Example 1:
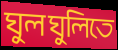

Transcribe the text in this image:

ঘুলঘুলিতে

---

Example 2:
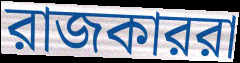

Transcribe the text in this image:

রাজকাররা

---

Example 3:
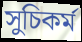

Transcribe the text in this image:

সুচিকর্ম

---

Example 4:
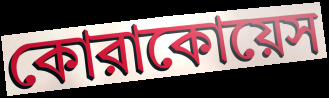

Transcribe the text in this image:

কোরাকোয়েস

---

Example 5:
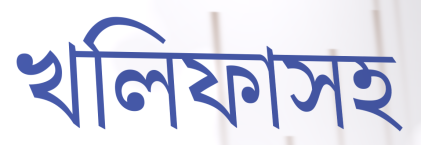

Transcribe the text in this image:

খলিফাসহ